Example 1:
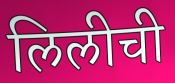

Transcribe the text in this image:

लिलीची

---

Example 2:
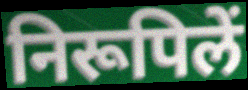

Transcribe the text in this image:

निरूपिलें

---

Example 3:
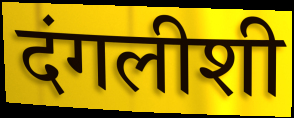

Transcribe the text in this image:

दंगलीशी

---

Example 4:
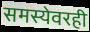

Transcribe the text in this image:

समस्येवरही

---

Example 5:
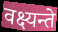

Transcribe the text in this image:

वक्ष्यन्ते